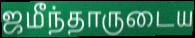
ஜமீந்தாருடைய